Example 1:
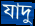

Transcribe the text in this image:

যাদু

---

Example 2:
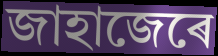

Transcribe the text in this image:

জাহাজেৰে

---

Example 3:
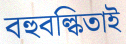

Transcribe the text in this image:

বহুবল্কিতাই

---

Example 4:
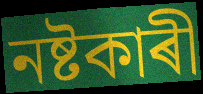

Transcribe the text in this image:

নষ্টকাৰী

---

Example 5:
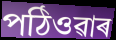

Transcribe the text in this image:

পঠিওৱাৰ